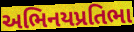
અભિનયપ્રતિભા